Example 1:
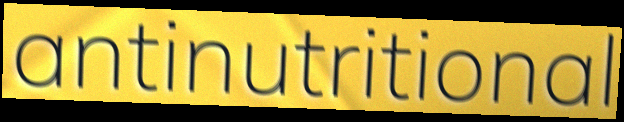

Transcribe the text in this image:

antinutritional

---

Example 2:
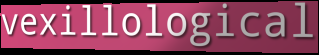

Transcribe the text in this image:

vexillological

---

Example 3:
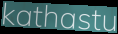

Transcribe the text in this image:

kathastu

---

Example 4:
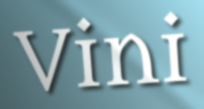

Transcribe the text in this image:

Vini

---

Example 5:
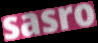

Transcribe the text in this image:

sasro